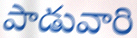
పాడువారి